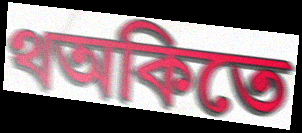
থঅকিতে